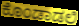
ಕೊಂಡಾಡಲಿ